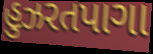
હુઝરતપાગા